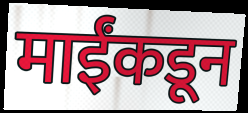
माईंकडून